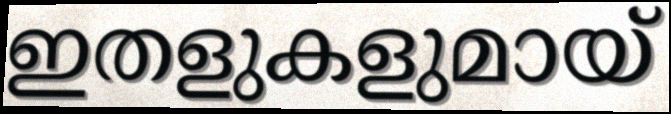
ഇതളുകളുമായ്